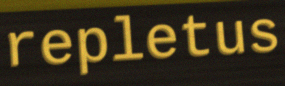
repletus